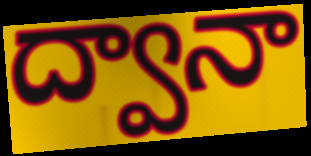
ద్వానా